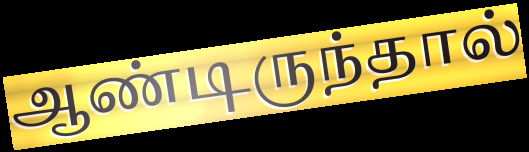
ஆண்டிருந்தால்